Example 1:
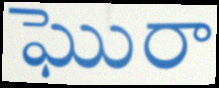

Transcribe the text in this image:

ఘొరా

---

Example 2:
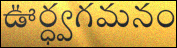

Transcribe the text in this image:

ఊర్ధ్వగమనం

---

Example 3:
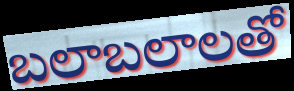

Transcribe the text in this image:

బలాబలాలతో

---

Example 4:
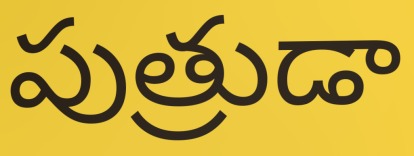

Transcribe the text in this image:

పుత్రుడా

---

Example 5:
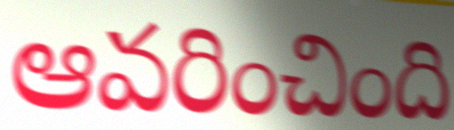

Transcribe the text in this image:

ఆవరించింది